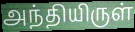
அந்தியிருள்